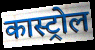
कास्ट्रोल